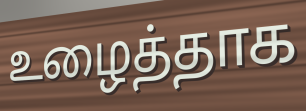
உழைத்தாக